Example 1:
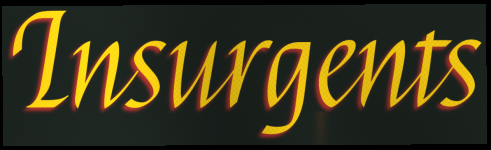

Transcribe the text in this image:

Insurgents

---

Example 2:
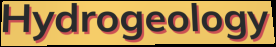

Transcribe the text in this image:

Hydrogeology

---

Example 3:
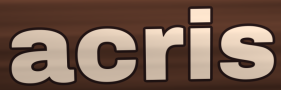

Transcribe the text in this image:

acris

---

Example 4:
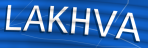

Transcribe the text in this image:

LAKHVA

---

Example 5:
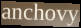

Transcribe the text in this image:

anchovy